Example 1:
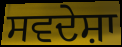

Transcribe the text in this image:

ਸਵਦੇਸ਼ਾ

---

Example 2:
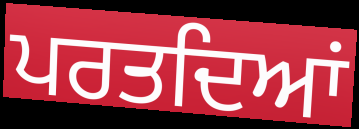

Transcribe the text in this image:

ਪਰਤਦਿਆਂ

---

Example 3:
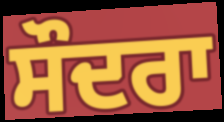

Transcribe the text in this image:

ਸੌਦਰਾ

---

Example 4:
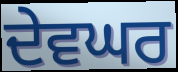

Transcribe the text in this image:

ਦੇਵਘਰ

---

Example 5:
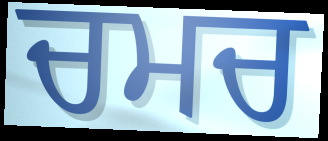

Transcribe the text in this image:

ਚਮਚ